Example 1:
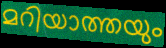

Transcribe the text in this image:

മറിയാത്തയും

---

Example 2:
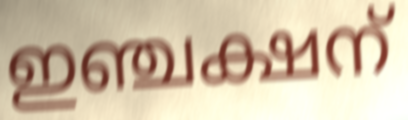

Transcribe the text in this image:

ഇഞ്ചക്ഷന്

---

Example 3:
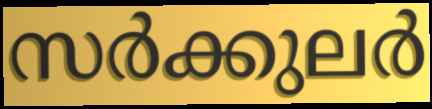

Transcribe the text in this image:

സർക്കുലർ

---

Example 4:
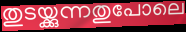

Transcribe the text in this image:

തുടയ്ക്കുന്നതുപോലെ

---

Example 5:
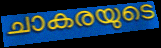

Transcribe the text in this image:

ചാകരയുടെ